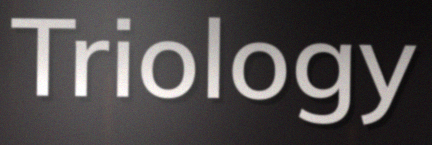
Triology